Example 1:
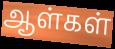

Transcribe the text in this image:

ஆள்கள்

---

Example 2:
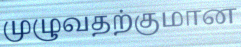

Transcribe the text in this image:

முழுவதற்குமான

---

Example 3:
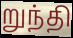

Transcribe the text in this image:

றுந்தி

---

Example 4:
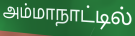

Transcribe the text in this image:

அம்மாநாட்டில்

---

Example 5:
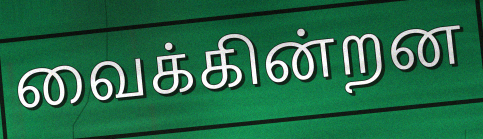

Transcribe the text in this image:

வைக்கின்றன